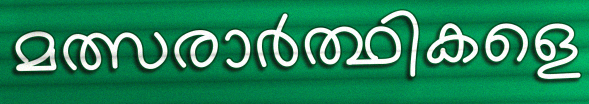
മത്സരാർത്ഥികളെ